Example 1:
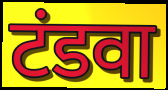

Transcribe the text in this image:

टंडवा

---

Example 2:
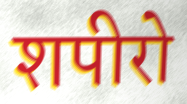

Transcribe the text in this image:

शपीरो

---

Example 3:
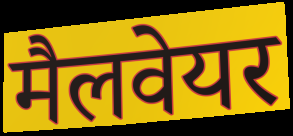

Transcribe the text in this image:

मैलवेयर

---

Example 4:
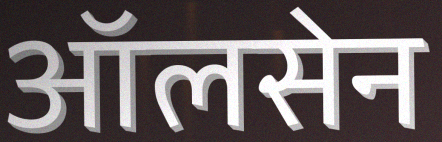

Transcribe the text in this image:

ऑलसेन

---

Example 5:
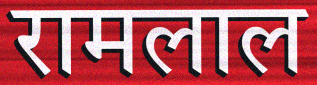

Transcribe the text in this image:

रामलाल